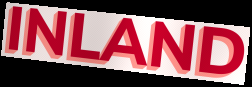
INLAND